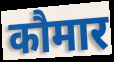
कौमार